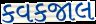
કવકજાલ